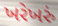
ખરેખરું